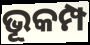
ଭୂକମ୍ପ